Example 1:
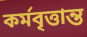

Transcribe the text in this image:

কর্মবৃত্তান্ত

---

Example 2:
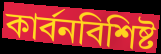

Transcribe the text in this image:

কার্বনবিশিষ্ট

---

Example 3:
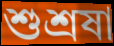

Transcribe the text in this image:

শুশ্রষা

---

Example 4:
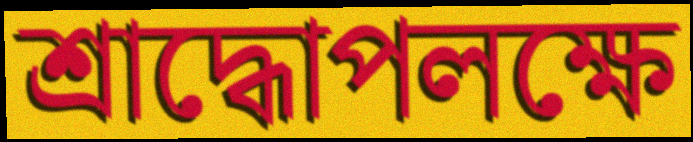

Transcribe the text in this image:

শ্রাদ্ধোপলক্ষে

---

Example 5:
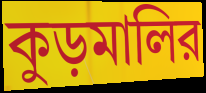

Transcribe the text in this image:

কুড়মালির